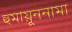
হুমায়ূননামা